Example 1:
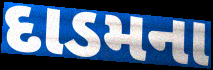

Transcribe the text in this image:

દાડમના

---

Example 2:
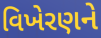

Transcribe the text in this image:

વિખેરણને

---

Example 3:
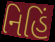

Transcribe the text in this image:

નિહિં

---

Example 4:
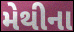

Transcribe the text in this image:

મેથીના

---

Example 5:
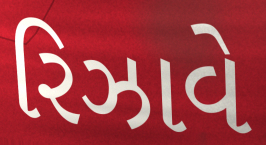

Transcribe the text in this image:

રિઝાવે